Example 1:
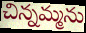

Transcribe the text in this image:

చిన్నమ్మను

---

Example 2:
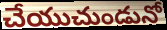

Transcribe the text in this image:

చేయుచుండునో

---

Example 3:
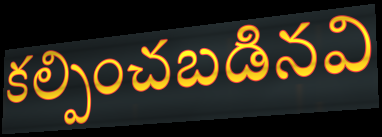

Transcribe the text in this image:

కల్పించబడినవి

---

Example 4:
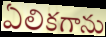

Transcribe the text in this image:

ఏలికగాను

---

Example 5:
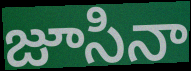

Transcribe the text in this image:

జూసినా